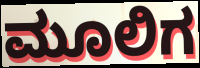
ಮೂಲಿಗ